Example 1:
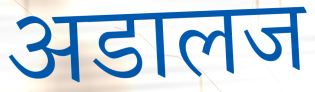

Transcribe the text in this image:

अडालज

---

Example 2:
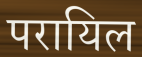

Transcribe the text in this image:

परायिल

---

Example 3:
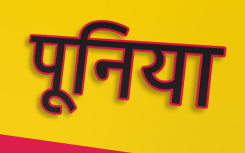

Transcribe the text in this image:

पूनिया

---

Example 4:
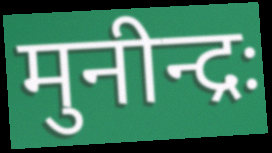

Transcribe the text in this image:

मुनीन्द्रः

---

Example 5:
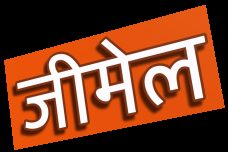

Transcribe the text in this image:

जीमेल